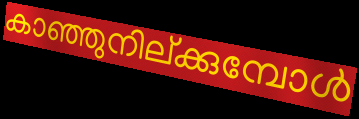
കാഞ്ഞുനില്ക്കുമ്പോൾ